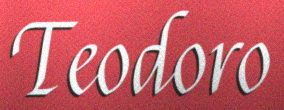
Teodoro